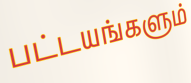
பட்டயங்களும்